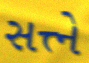
સત્ત્ને